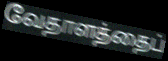
வேதாளத்தைப்